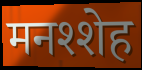
मनश्शेह